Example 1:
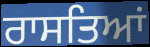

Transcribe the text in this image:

ਰਾਸਤਿਆਂ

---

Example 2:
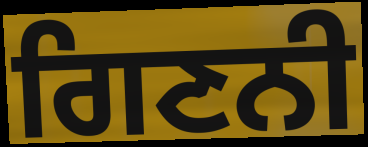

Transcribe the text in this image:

ਗਿਣਨੀ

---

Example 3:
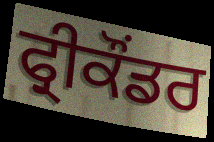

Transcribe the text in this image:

ਫ੍ਰੀਕੌਂਡਰ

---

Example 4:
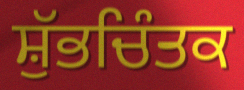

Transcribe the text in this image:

ਸ਼ੁੱਭਚਿੰਤਕ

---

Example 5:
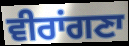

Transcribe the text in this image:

ਵੀਰਾਂਗਣਾ